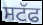
ਸਟੱਫ